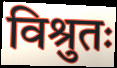
विश्रुतः